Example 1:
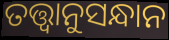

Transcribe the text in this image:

ତତ୍ତ୍ବାନୁସନ୍ଧାନ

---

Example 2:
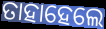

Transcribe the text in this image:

ତାହାହେଲେ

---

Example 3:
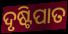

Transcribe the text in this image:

ଦୃଷ୍ଟିପାତ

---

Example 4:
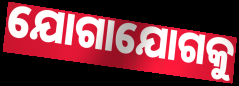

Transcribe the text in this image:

ଯୋଗାଯୋଗକୁ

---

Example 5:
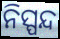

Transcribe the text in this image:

ନିସ୍ପନ୍ଦ